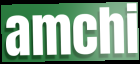
amchi